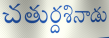
చతుర్దశినాడు